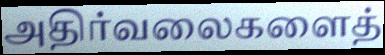
அதிர்வலைகளைத்